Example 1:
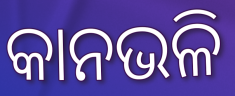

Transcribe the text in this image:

କାନଭଳି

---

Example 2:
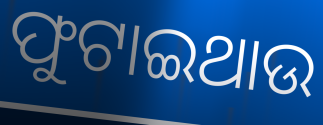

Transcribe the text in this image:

ଫୁଟାଇଥାଉ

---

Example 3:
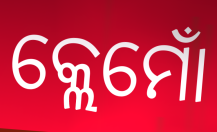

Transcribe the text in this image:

କ୍ଲେମୋଁ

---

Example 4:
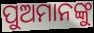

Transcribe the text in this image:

ପୁଅମାନଙ୍କୁ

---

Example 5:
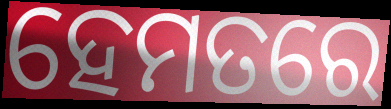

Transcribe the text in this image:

ହେମତରେ